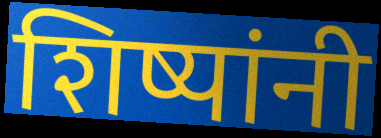
शिष्यांनी